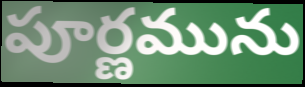
పూర్ణమును